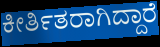
ಕೀರ್ತಿತರಾಗಿದ್ದಾರೆ